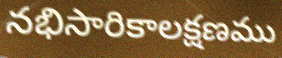
నభిసారికాలక్షణము